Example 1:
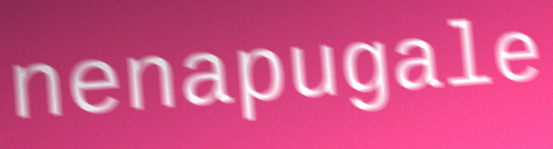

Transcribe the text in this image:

nenapugale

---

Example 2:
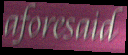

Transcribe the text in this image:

aforesaid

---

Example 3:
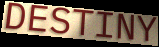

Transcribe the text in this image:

DESTINY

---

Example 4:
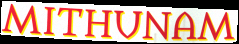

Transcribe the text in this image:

MITHUNAM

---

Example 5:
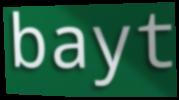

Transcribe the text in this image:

bayt